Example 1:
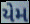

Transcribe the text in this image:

યેમ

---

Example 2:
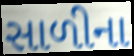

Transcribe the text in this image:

સાળીના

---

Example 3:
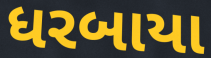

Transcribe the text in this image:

ધરબાયા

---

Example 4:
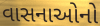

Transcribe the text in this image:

વાસનાઓનો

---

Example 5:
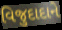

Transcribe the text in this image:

વિજુદાદાને